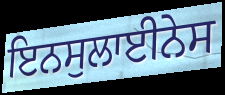
ਇਨਸੁਲਾਈਨੇਸ